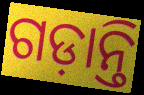
ଗଡ଼ାନ୍ତି